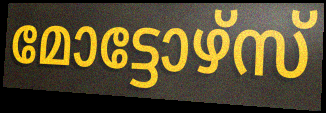
മോട്ടോഴ്സ്